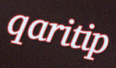
qaritip